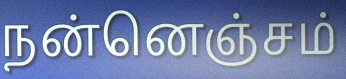
நன்னெஞ்சம்